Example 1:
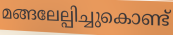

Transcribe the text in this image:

മങ്ങലേല്പിച്ചുകൊണ്ട്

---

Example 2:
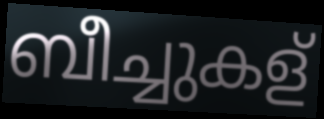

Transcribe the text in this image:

ബീച്ചുകള്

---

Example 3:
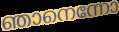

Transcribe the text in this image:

ഞാനെന്നോ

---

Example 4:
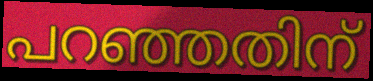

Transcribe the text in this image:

പറഞ്ഞതിന്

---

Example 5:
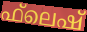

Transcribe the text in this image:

ഫ്‌ലെഷ്